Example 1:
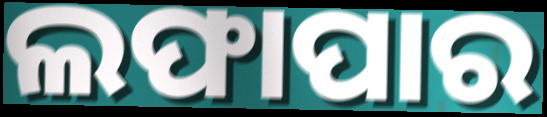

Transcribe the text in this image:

ଲଫାପାର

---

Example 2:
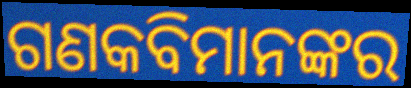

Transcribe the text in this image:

ଗଣକବିମାନଙ୍କର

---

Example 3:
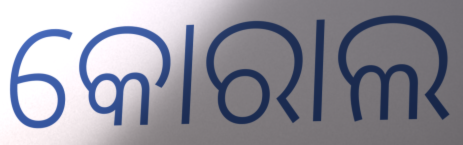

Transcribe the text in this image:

କୋରାଲ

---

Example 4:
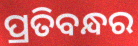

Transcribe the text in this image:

ପ୍ରତିବନ୍ଧର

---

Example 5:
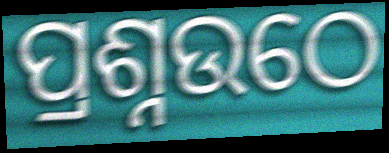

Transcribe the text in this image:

ପ୍ରଶ୍ନଉଠେ